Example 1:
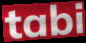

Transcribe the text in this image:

tabi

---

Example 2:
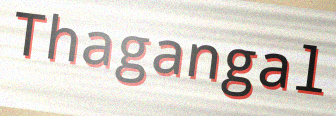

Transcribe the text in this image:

Thagangal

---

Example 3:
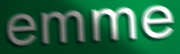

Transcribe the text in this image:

emme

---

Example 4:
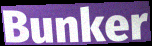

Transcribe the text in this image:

Bunker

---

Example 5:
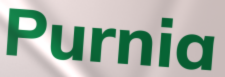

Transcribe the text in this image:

Purnia